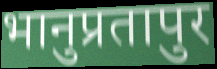
भानुप्रतापुर